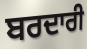
ਬਰਦਾਰੀ